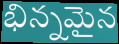
భిన్నమైన